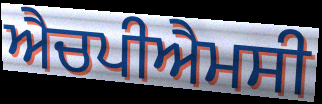
ਐਚਪੀਐਮਸੀ